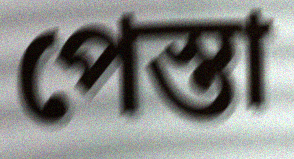
পেস্তা